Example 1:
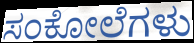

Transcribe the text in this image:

ಸಂಕೋಲೆಗಳು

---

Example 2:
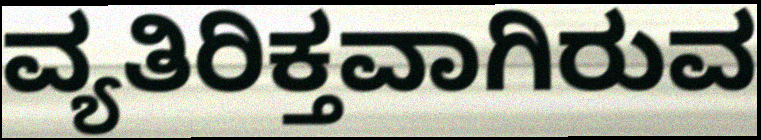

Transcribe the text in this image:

ವ್ಯತಿರಿಕ್ತವಾಗಿರುವ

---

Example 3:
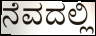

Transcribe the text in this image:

ನೆವದಲ್ಲಿ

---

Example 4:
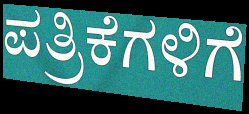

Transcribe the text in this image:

ಪತ್ರಿಕೆಗಳಿಗೆ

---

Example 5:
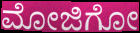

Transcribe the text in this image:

ಮೋಜಿಗೋ